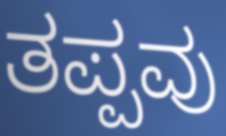
ತಪ್ಪವು